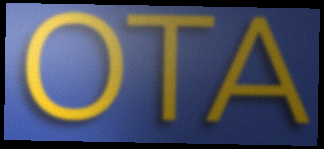
OTA